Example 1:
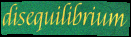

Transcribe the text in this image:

disequilibrium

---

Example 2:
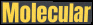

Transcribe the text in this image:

Molecular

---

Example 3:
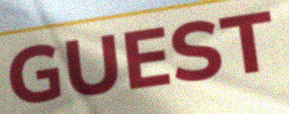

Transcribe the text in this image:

GUEST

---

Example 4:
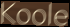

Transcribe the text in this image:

Koole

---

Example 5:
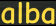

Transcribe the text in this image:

alba